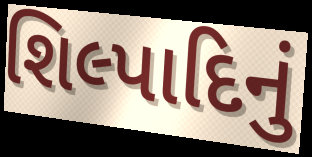
શિલ્પાદિનું